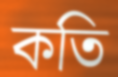
কতি